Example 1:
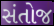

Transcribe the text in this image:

સંતોજ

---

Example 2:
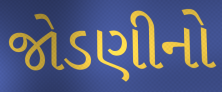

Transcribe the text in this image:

જોડણીનો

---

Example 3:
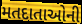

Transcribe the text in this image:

મતદાતાઓની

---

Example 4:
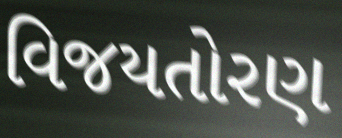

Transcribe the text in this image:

વિજયતોરણ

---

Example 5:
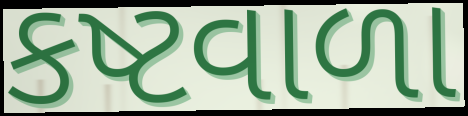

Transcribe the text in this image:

કષ્ટવાળા